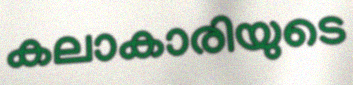
കലാകാരിയുടെ